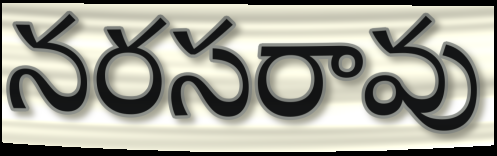
నరసరావు